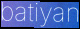
batiyan